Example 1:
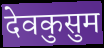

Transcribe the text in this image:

देवकुसुम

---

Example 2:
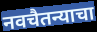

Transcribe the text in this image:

नवचैतन्याचा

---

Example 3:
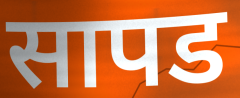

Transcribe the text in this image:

सापड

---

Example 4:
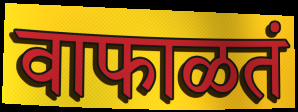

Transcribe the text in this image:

वाफाळतं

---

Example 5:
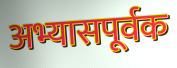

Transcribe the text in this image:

अभ्यासपूर्वक